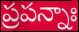
ప్రపన్నాః